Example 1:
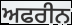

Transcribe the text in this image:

ਅਫਰੀਨ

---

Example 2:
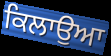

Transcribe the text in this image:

ਕਿਲਾਉਆ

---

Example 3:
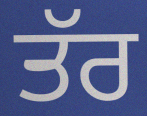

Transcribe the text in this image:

ਤੱਰ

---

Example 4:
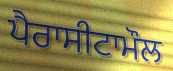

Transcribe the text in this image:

ਪੈਰਾਸੀਟਾਮੌਲ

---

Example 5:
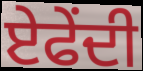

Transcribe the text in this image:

ਏਫੇਂਦੀ